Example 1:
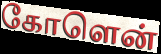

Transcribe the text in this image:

கோளென்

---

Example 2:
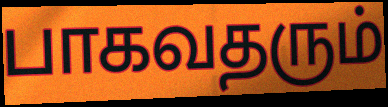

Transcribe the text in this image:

பாகவதரும்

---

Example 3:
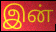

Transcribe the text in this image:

இன்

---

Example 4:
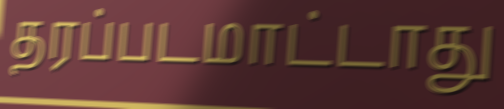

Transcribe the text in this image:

தரப்படமாட்டாது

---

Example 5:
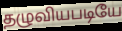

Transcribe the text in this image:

தழுவியபடியே